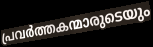
പ്രവർത്തകന്മാരുടെയും